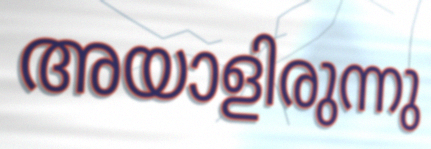
അയാളിരുന്നു